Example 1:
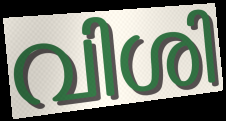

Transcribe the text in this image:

വിശി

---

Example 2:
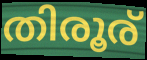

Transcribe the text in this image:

തിരൂര്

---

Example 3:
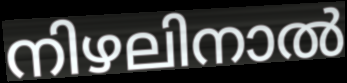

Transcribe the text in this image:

നിഴലിനാൽ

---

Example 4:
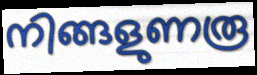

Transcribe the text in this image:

നിങ്ങളുണരൂ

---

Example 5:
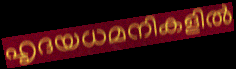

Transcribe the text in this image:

ഹൃദയധമനികളിൽ